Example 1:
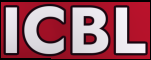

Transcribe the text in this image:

ICBL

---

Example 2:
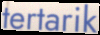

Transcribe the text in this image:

tertarik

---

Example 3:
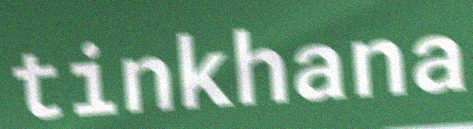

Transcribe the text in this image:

tinkhana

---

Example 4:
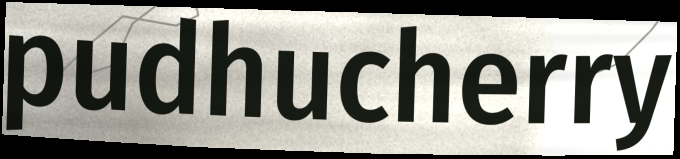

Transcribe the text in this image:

pudhucherry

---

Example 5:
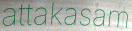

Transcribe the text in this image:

attakasam